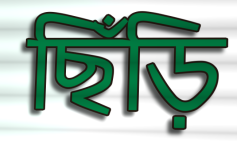
ছিঁড়ি